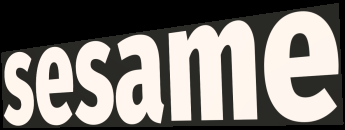
sesame